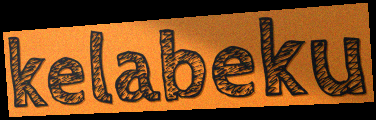
kelabeku